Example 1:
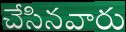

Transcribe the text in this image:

చేసినవారు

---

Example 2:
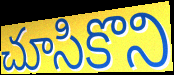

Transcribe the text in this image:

చూసికొని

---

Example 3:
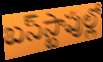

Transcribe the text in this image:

బస్‌స్టాపుల్లో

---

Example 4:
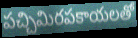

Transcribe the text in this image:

పచ్చిమిరపకాయలతో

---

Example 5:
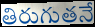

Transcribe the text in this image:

తిరుగుతనే